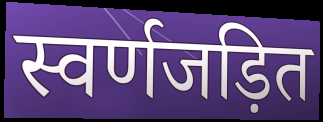
स्वर्णजड़ित